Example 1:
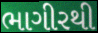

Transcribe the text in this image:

ભાગીરથી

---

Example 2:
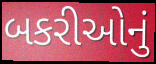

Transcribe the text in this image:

બકરીઓનું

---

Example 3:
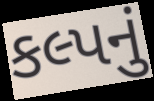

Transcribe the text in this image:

કલ્પનું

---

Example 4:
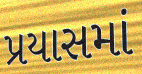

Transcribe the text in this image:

પ્રયાસમાં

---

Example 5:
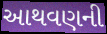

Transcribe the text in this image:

આથવણની